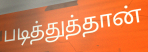
படித்துத்தான்